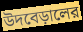
উদবেড়ালের